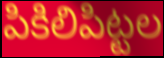
పికిలిపిట్టల